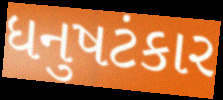
ધનુષટંકાર